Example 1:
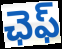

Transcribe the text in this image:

ఛెఫ్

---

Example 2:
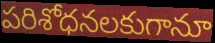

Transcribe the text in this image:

పరిశోధనలకుగానూ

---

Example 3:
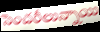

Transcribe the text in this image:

సెంచరీలున్నాయి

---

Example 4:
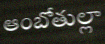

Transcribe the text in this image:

ఆంబోతుల్లా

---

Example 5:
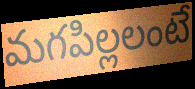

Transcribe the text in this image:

మగపిల్లలంటే